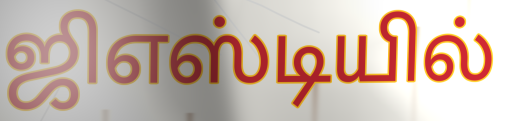
ஜிஎஸ்டியில்